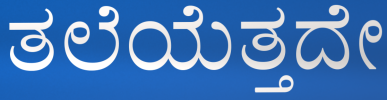
ತಲೆಯೆತ್ತದೇ